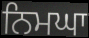
ਨਿਮਘਾ